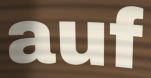
auf